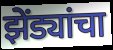
झेंड्यांचा